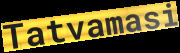
Tatvamasi